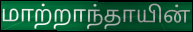
மாற்றாந்தாயின்